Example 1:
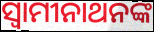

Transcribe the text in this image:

ସ୍ଵାମୀନାଥନଙ୍କ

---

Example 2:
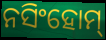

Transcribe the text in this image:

ନସିଂହୋମ୍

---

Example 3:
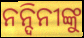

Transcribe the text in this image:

ନନ୍ଦିନୀଙ୍କୁ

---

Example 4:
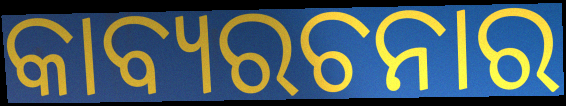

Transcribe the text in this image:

କାବ୍ୟରଚନାର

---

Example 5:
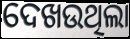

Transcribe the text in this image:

ଦେଖଉଥିଲା